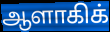
ஆளாகிக்